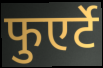
फुएर्टे